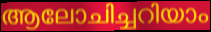
ആലോചിച്ചറിയാം